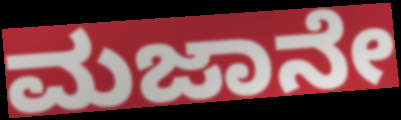
ಮಜಾನೇ